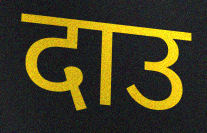
दाउ